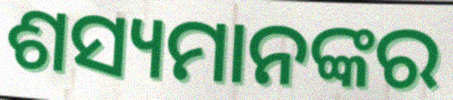
ଶସ୍ୟମାନଙ୍କର